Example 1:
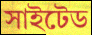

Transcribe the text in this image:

সাইটেড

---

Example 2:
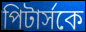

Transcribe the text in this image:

পিটার্সকে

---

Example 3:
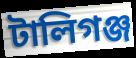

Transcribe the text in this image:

টালিগঞ্জ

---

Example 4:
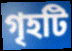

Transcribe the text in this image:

গৃহটি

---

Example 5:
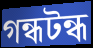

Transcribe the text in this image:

গন্ধটন্ধ